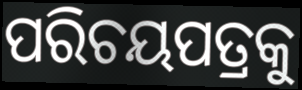
ପରିଚୟପତ୍ରକୁ